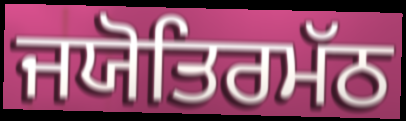
ਜਯੋਤਿਰਮੱਠ